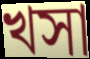
খসা